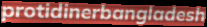
protidinerbangladesh